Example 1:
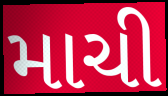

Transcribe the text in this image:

માચી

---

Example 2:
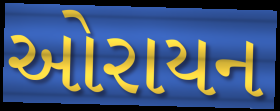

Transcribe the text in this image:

ઓરાયન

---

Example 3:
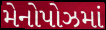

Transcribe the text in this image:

મેનોપોઝમાં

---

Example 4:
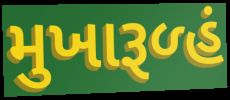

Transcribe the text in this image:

મુખારૂળ્હં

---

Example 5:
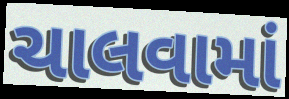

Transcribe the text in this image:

ચાલવામાં